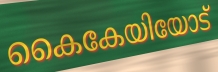
കൈകേയിയോട്